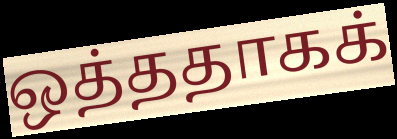
ஒத்ததாகக்